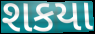
શકયા